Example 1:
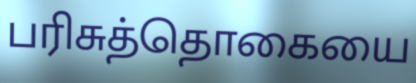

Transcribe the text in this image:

பரிசுத்தொகையை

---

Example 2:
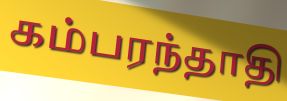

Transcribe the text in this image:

கம்பரந்தாதி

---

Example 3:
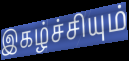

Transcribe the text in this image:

இகழ்ச்சியும்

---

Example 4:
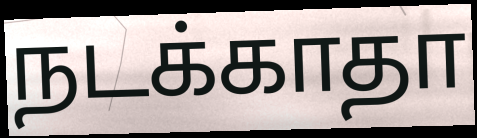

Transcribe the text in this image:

நடக்காதா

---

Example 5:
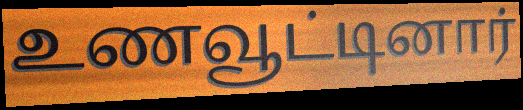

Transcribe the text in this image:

உணவூட்டினார்